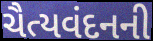
ચૈત્યવંદનની